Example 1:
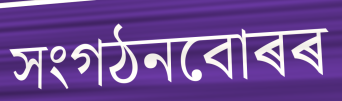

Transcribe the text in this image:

সংগঠনবোৰৰ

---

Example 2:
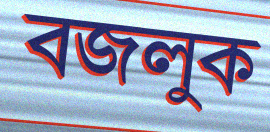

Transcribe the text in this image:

বজলুক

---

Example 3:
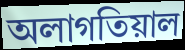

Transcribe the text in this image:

অলাগতিয়াল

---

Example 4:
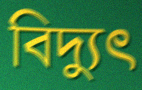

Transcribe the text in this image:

বিদ্যুৎ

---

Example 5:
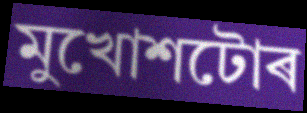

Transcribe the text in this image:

মুখোশটোৰ